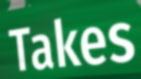
Takes